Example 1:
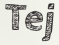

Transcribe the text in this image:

Tej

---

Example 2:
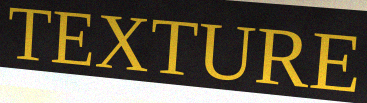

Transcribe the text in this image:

TEXTURE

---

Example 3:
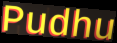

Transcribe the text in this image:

Pudhu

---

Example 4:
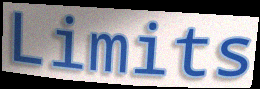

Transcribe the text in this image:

Limits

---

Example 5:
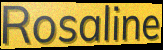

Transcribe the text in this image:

Rosaline